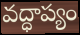
వద్ధాప్యం